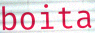
boita